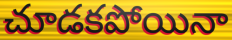
చూడకపోయినా